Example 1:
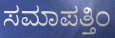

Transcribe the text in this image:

ಸಮಾಪತ್ತಿಂ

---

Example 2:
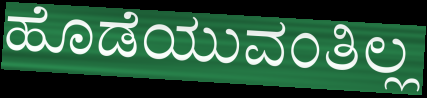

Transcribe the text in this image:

ಹೊಡೆಯುವಂತಿಲ್ಲ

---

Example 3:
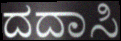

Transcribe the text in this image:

ದದಾಸಿ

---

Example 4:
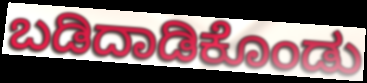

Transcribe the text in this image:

ಬಡಿದಾಡಿಕೊಂಡು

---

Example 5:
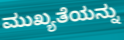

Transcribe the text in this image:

ಮುಖ್ಯತೆಯನ್ನು